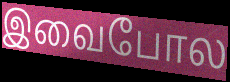
இவைபோல